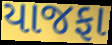
યાજફા